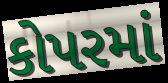
કોપરમાં